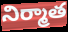
నిర్మాత